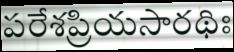
పరేశప్రియసారథిః